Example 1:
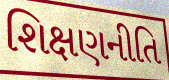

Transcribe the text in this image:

શિક્ષણનીતિ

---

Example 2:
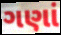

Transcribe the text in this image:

ગણાં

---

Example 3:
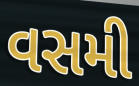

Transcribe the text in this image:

વસમી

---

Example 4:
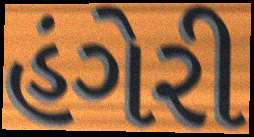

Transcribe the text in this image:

હંગેરી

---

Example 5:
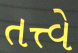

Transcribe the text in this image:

તત્ત્વે